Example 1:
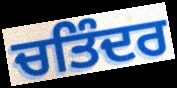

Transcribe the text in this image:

ਚਤਿੰਦਰ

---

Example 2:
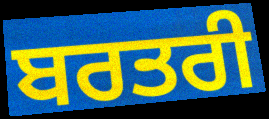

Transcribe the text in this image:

ਬਰਤਰੀ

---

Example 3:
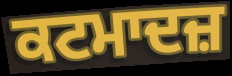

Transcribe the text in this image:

ਕਟਮਾਦਜ਼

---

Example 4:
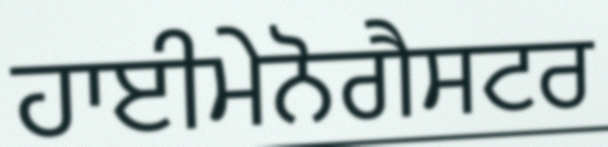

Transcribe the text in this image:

ਹਾਈਮੇਨੋਗੈਸਟਰ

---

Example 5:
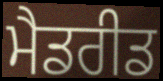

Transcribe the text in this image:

ਮੈਡਰੀਡ